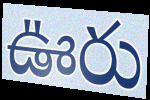
ఊరు